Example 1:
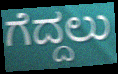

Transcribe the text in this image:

ಗೆದ್ದಲು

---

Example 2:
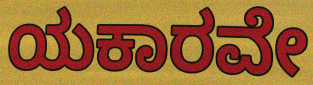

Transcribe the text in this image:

ಯಕಾರವೇ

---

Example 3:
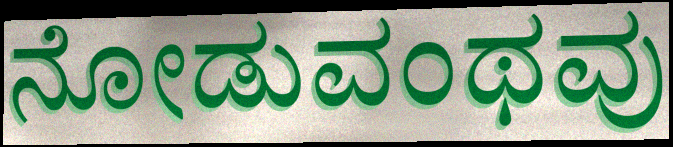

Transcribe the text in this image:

ನೋಡುವಂಥವು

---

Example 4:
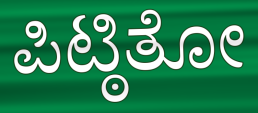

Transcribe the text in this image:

ಪಿಟ್ಠಿತೋ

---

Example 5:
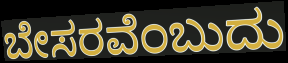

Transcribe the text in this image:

ಬೇಸರವೆಂಬುದು